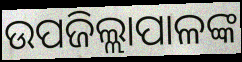
ଉପଜିଲ୍ଲାପାଳଙ୍କ